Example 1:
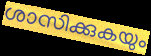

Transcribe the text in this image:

ശാസിക്കുകയും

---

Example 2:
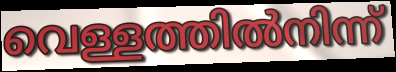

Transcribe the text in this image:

വെള്ളത്തിൽനിന്ന്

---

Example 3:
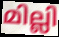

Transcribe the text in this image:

മില്ലി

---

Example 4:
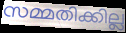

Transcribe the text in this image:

സമ്മതിക്കില്ല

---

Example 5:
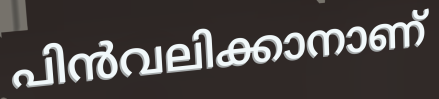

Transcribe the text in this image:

പിൻവലിക്കാനാണ്